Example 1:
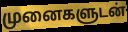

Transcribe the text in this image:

முனைகளுடன்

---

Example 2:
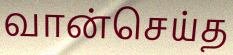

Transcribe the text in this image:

வான்செய்த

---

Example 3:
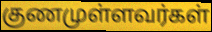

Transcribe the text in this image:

குணமுள்ளவர்கள்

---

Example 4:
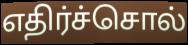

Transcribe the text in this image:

எதிர்ச்சொல்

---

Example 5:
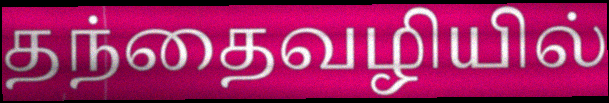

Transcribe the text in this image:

தந்தைவழியில்